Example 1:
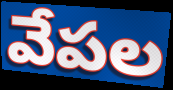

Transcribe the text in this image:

వేపల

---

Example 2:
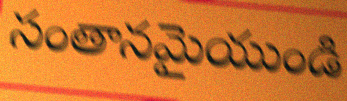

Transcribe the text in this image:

సంతానమైయుండి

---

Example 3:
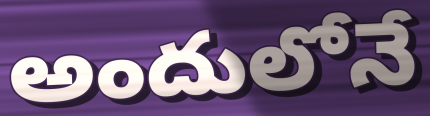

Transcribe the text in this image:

అందులోనే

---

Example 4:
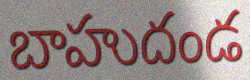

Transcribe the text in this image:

బాహుదండ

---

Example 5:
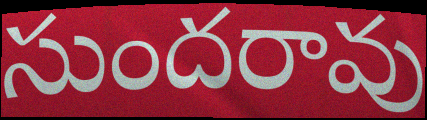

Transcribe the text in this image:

సుందరావు